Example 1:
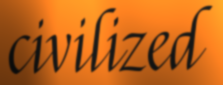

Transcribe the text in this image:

civilized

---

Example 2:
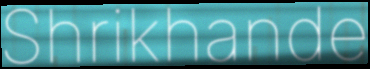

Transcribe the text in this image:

Shrikhande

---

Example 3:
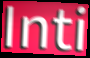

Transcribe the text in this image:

Inti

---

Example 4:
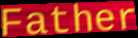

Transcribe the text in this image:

Father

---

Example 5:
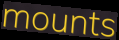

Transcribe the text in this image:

mounts